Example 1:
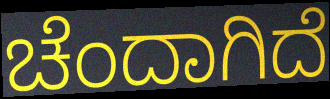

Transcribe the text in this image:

ಚೆಂದಾಗಿದೆ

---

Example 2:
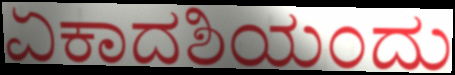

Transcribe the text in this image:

ಏಕಾದಶಿಯಂದು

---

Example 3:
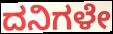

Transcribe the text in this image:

ದನಿಗಳೇ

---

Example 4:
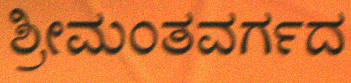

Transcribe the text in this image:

ಶ್ರೀಮಂತವರ್ಗದ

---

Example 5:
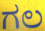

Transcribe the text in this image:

ಗಲ